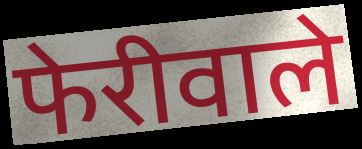
फेरीवाले